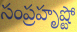
సంప్రహృష్టో